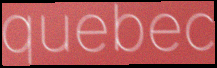
quebec